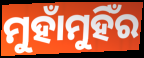
ମୁହାଁମୁହିଁର